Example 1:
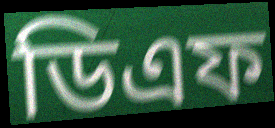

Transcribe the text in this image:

ডিএফ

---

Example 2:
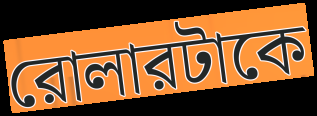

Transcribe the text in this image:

রোলারটাকে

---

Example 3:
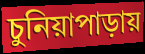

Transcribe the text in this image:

চুনিয়াপাড়ায়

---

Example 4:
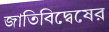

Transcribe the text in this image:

জাতিবিদ্বেষের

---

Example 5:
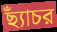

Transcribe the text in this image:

ছ্যাঁচর